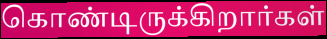
கொண்டிருக்கிறார்கள்